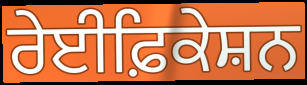
ਰੇਈਫ਼ਿਕੇਸ਼ਨ